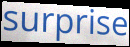
surprise